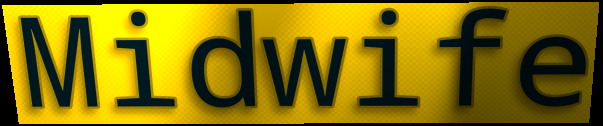
Midwife